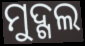
ମୁଦ୍ଗଲ